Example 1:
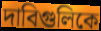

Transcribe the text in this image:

দাবিগুলিকে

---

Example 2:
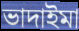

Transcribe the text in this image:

ভাদাইমা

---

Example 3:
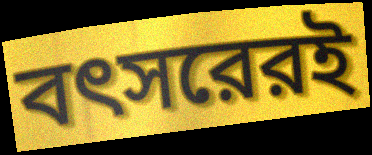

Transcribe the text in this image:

বৎসরেরই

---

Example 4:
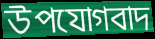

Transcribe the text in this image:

উপযোগবাদ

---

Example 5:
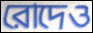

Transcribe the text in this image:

রোদেও